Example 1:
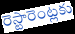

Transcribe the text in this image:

రెస్టారెంట్లకు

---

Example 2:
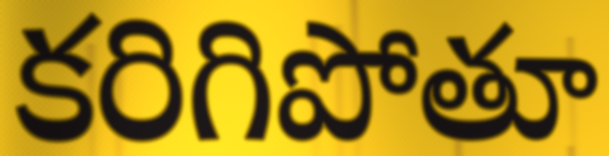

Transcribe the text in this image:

కరిగిపోతూ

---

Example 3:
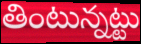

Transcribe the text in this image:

తింటున్నట్టు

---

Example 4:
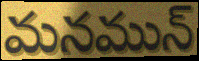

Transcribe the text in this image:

మనమున్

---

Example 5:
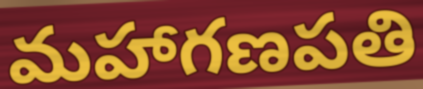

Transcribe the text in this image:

మహాగణపతి